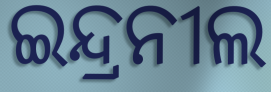
ଇନ୍ଦ୍ରନୀଲ